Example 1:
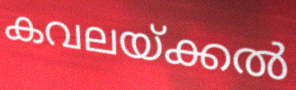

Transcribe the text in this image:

കവലയ്ക്കൽ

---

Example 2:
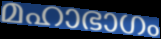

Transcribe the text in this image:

മഹാഭാഗം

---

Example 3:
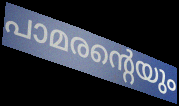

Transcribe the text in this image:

പാമരന്റെയും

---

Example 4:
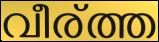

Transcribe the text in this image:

വീര്ത്ത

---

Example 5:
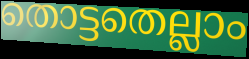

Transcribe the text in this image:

തൊട്ടതെല്ലാം